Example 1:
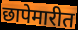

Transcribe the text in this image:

छापेमारीत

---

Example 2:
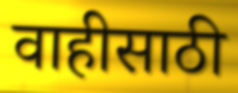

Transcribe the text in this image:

वाहीसाठी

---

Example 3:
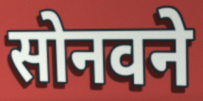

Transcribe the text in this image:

सोनवने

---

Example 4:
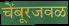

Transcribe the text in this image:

चेंबूरजवळ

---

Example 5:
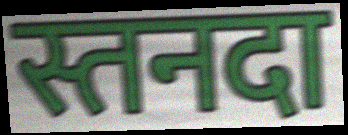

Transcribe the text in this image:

स्तनदा